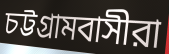
চট্টগ্রামবাসীরা